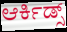
ಆರ್ಕಿಡ್ಸ್